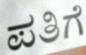
ಪತಿಗೆ